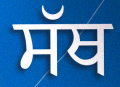
ਸੱਥ